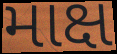
માક્ષ